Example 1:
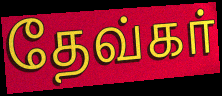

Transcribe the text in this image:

தேவ்கர்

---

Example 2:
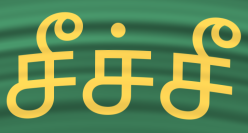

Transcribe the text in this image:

சீச்சீ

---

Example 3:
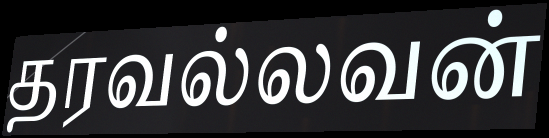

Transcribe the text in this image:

தரவல்லவன்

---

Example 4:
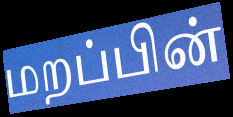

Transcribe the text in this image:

மறப்பின்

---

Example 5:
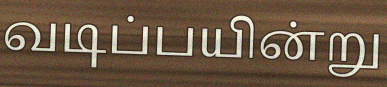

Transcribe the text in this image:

வடிப்பயின்று